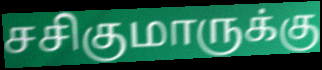
சசிகுமாருக்கு